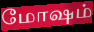
மோஷம்